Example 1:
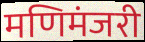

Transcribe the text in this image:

मणिमंजरी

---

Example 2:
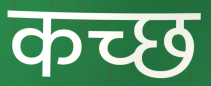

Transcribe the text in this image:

कच्‍छ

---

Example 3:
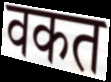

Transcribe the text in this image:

वकत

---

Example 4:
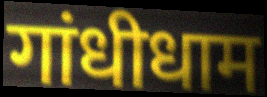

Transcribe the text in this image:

गांधीधाम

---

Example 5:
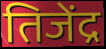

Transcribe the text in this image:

तिजेंद्र